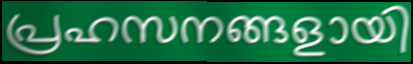
പ്രഹസനങ്ങളായി